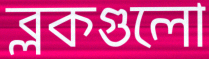
ব্লকগুলো